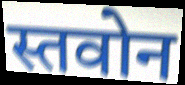
स्तवोन